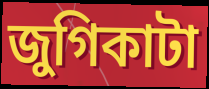
জুগিকাটা